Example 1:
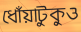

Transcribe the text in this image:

ধোঁয়াটুকুও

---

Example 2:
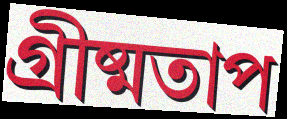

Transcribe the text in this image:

গ্রীষ্মতাপ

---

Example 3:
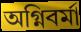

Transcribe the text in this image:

অগ্নিবর্মা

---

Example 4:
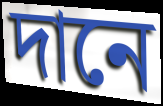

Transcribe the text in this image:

দানে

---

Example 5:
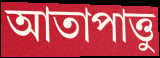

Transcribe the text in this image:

আতাপাত্তু